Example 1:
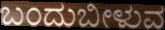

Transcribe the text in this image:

ಬಂದುಬೀಳುವ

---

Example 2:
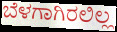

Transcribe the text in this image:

ಬೆಳಗಾಗಿರಲಿಲ್ಲ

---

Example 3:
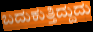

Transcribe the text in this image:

ಬದುಕುತ್ತಿದ್ದುದು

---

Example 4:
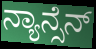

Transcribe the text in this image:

ನ್ಯಾನ್ಸೆನ್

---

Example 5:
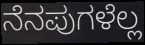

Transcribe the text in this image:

ನೆನಪುಗಳೆಲ್ಲ